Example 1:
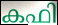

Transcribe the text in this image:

കഫി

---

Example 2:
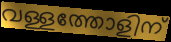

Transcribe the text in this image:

വള്ളത്തോളിന്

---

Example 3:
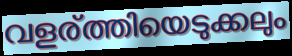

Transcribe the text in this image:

വളര്ത്തിയെടുക്കലും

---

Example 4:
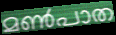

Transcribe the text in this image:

മൺപാത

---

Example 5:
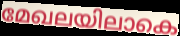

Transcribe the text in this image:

മേഖലയിലാകെ